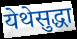
येथेसुद्धा